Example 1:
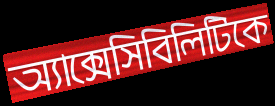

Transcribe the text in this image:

অ্যাক্সেসিবিলিটিকে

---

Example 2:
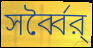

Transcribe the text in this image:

সর্ব্বৈর্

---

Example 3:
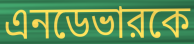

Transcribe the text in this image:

এনডেভারকে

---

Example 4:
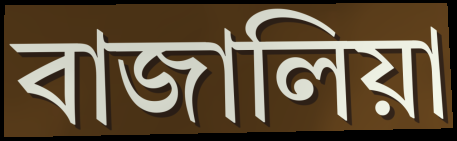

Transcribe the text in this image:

বাজালিয়া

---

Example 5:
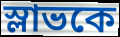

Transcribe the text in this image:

স্লাভকে